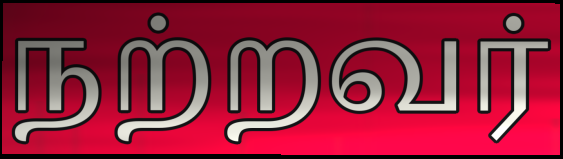
நற்றவர்